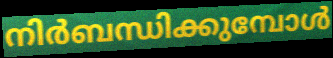
നിർബന്ധിക്കുമ്പോൾ